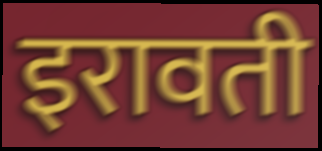
इरावती